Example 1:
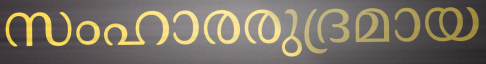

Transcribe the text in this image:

സംഹാരരുദ്രമായ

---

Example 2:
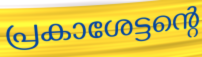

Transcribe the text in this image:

പ്രകാശേട്ടന്റെ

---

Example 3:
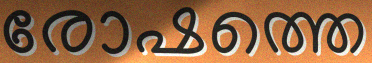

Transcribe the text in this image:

രോഷത്തെ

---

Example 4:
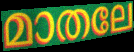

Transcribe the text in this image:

മാതലേ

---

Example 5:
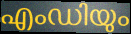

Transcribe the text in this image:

എംഡിയും